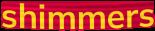
shimmers